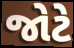
જોટે